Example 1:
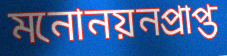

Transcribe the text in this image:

মনোনয়নপ্রাপ্ত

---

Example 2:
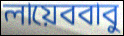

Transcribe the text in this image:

লায়েববাবু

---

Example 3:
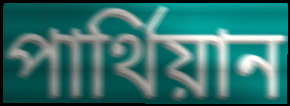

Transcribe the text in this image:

পার্থিয়ান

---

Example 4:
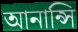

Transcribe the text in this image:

আনান্সি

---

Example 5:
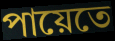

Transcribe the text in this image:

পায়েতে